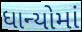
ધાન્યોમાં